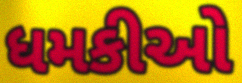
ધમકીઓ